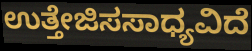
ಉತ್ತೇಜಿಸಸಾಧ್ಯವಿದೆ